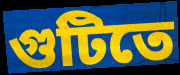
গুটিতে